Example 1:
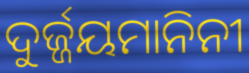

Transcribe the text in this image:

ଦୁର୍ଜ୍ଜୟମାନିନୀ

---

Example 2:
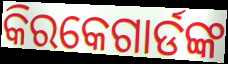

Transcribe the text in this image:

କିରକେଗାର୍ଡଙ୍କ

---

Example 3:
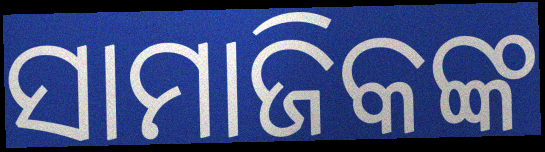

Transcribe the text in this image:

ସାମାଜିକଙ୍କ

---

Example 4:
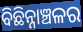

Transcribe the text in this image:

ବିଛିନ୍ନାଞ୍ଚଳର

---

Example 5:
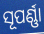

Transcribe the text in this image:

ସୂପର୍ଣ୍ଣା